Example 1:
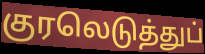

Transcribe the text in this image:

குரலெடுத்துப்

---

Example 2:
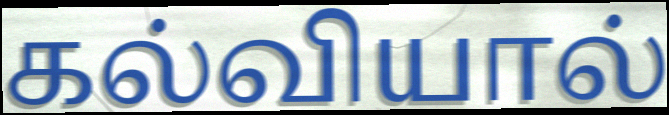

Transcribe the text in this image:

கல்வியால்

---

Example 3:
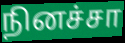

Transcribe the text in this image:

நினச்சா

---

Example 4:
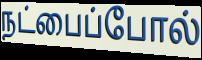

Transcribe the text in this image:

நட்பைப்போல்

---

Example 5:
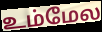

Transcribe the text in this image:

உம்மேல